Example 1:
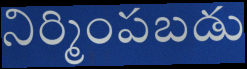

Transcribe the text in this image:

నిర్మింపబడు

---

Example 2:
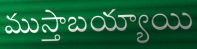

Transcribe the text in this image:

ముస్తాబయ్యాయి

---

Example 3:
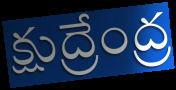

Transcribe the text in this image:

క్షుద్రేంద్ర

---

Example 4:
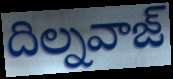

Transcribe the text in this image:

దిల్నవాజ్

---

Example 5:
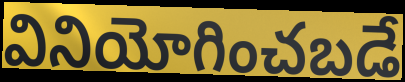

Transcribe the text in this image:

వినియోగించబడే